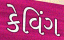
કેવિંગ